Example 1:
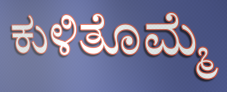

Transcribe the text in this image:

ಕುಳಿತೊಮ್ಮೆ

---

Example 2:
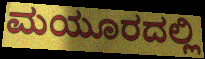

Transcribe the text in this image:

ಮಯೂರದಲ್ಲಿ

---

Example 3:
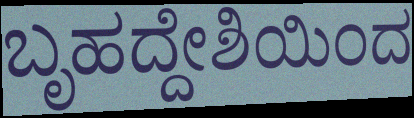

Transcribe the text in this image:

ಬೃಹದ್ದೇಶಿಯಿಂದ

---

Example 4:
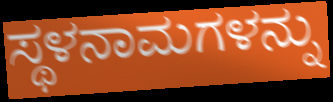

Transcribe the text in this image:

ಸ್ಥಳನಾಮಗಳನ್ನು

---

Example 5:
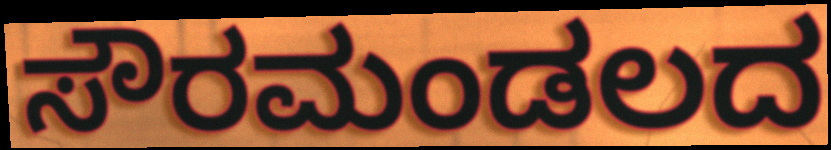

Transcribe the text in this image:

ಸೌರಮಂಡಲದ